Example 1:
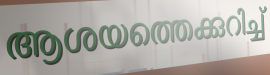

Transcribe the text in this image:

ആശയത്തെക്കുറിച്ച്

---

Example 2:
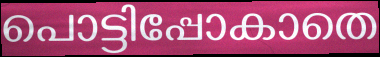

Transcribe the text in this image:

പൊട്ടിപ്പോകാതെ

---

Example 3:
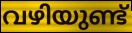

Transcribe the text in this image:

വഴിയുണ്ട്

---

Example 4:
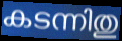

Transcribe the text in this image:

കടന്നിതു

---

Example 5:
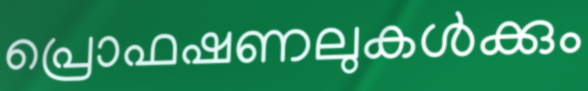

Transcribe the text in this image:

പ്രൊഫഷണലുകൾക്കും